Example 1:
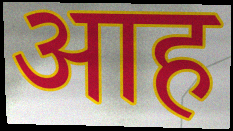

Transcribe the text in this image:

आह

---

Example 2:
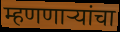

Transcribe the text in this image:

म्हणणाऱ्यांचा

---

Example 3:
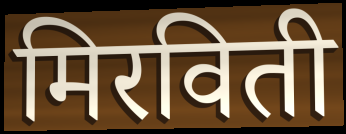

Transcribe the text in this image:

मिरविती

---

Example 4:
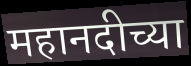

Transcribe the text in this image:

महानदीच्या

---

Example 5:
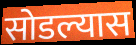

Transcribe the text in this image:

सोडल्यास